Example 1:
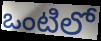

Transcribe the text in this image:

ఒంటిలో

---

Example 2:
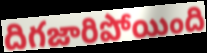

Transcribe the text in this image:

దిగజారిపోయింది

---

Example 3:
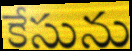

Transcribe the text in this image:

కేసును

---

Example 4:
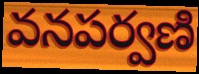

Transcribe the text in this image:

వనపర్వణి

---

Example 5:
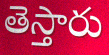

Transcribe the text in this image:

తెస్తారు